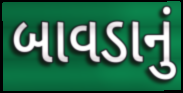
બાવડાનું